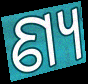
ଣ୍ଯ